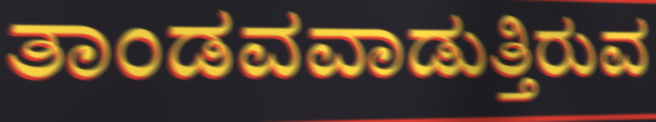
ತಾಂಡವವಾಡುತ್ತಿರುವ